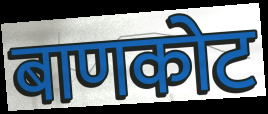
बाणकोट